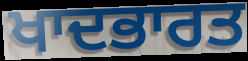
ਖਾਦਭਾਰਤ